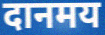
दानमय